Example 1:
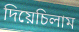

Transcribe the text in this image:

দিয়েচিলাম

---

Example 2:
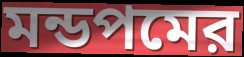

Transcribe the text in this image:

মন্ডপমের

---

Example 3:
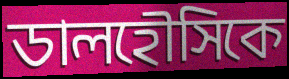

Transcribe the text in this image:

ডালহৌসিকে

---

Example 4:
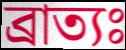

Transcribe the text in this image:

ব্রাত্যঃ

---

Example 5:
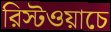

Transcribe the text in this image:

রিস্টওয়াচে